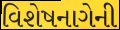
વિશેષનાગેની